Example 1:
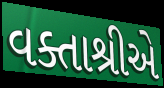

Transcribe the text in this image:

વક્તાશ્રીએ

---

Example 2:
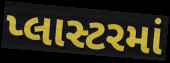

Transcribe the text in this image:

પ્લાસ્ટરમાં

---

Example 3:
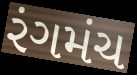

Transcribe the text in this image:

રંગમંચ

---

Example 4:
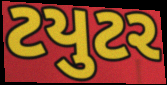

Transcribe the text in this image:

ટયુટર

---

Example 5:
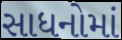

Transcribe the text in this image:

સાધનોમાં